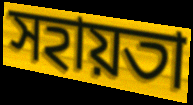
সহায়তা